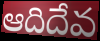
ఆదిదేవ